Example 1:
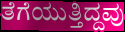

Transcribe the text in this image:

ತೆಗೆಯುತ್ತಿದ್ದವು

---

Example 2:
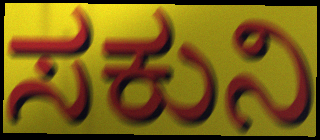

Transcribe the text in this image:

ಸಕುನಿ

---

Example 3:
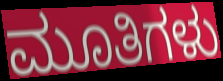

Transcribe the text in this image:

ಮೂತಿಗಳು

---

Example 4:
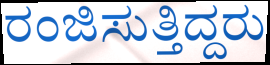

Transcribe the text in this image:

ರಂಜಿಸುತ್ತಿದ್ದರು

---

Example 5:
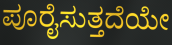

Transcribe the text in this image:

ಪೂರೈಸುತ್ತದೆಯೇ